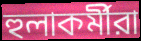
হুলাকর্মীরা